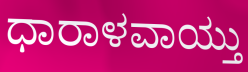
ಧಾರಾಳವಾಯ್ತು